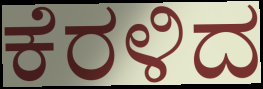
ಕೆರಳಿದ